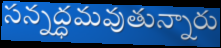
సన్నద్ధమవుతున్నారు